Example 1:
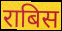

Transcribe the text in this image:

राबिस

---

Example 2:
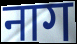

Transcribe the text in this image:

नाग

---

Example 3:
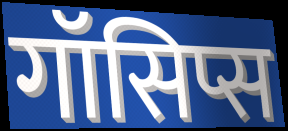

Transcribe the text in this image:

गॉसिप्स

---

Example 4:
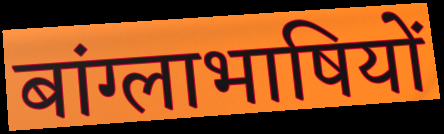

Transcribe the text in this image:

बांग्लाभाषियों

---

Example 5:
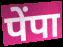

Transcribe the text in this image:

पेंपा